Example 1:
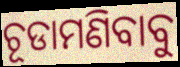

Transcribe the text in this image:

ଚୂଡାମଣିବାବୁ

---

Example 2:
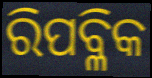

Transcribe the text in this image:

ରିପବ୍ଳିକ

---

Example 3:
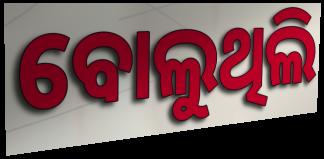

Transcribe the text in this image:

ବୋଲୁଥିଲି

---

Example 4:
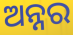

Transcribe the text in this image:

ଅନ୍ନର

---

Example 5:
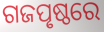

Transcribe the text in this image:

ଗଜପୃଷ୍ଠରେ